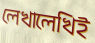
লেখালেখিই